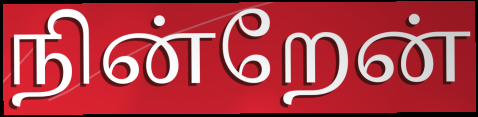
நின்றேன்